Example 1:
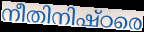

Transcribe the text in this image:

നീതിനിഷ്ഠരെ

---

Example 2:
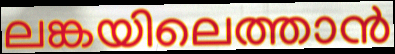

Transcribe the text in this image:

ലങ്കയിലെത്താൻ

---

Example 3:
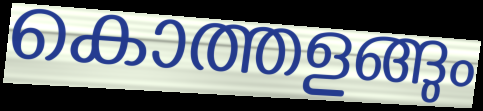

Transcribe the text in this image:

കൊത്തളങ്ങും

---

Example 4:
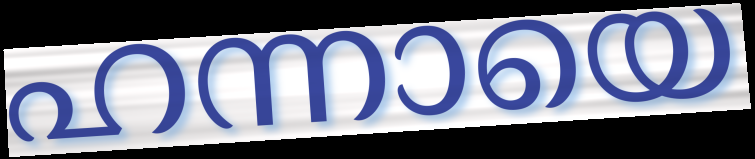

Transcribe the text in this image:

ഹന്നായെ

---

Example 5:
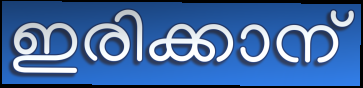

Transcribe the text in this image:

ഇരിക്കാന്